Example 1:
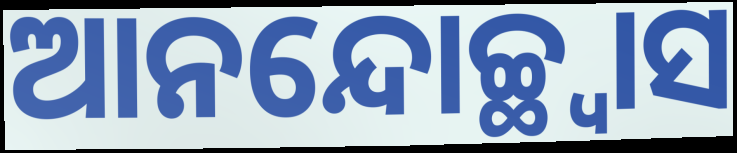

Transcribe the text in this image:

ଆନନ୍ଦୋଚ୍ଛ୍ୱାସ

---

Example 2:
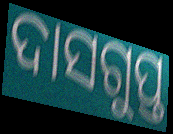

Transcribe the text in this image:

ଦାସଗୁପ୍ତ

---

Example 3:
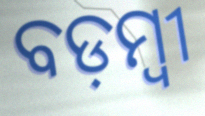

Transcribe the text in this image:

ବଡ଼ମ୍ବୀ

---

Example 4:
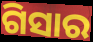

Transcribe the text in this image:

ଗିସାର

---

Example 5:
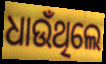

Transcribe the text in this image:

ଧାଉଁଥିଲେ